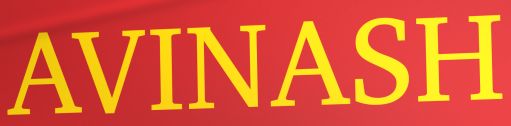
AVINASH